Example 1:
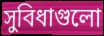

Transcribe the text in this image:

সুবিধাগুলো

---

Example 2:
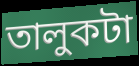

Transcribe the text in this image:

তালুকটা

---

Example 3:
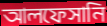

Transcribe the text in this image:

আলফেসানি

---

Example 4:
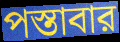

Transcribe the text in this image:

পস্তাবার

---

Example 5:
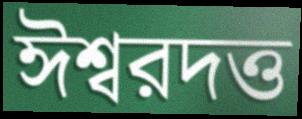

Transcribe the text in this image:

ঈশ্বরদত্ত